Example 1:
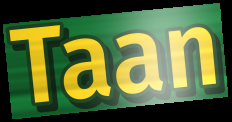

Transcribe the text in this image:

Taan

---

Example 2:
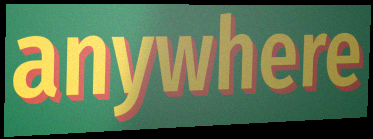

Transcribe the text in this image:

anywhere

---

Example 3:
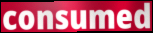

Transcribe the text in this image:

consumed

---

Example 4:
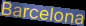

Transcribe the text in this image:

Barcelona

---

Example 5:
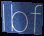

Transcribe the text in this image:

lbf